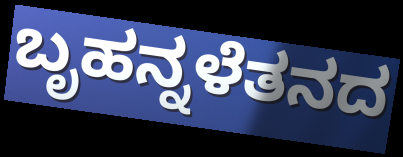
ಬೃಹನ್ನಳೆತನದ